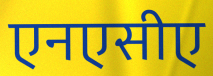
एनएसीए